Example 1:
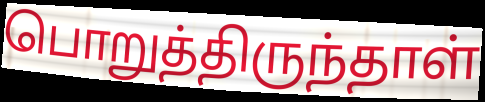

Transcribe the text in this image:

பொறுத்திருந்தாள்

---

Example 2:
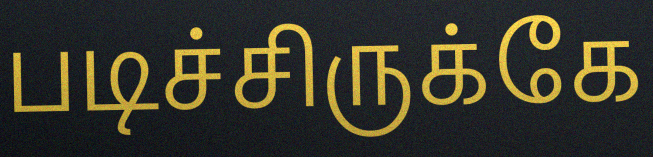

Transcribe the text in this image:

படிச்சிருக்கே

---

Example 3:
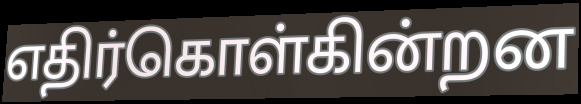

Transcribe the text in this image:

எதிர்கொள்கின்றன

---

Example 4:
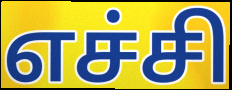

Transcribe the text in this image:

எச்சி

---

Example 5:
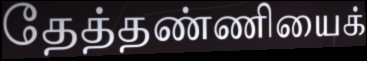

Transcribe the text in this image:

தேத்தண்ணியைக்